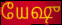
யேஷு